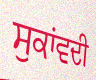
ਸੁਕਾਂਵਦੀ